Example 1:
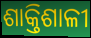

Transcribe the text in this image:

ଶାକ୍ତିଶାଳୀ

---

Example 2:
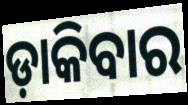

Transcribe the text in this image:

ଡ଼ାକିବାର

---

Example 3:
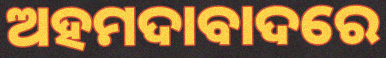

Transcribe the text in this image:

ଅହମଦାବାଦରେ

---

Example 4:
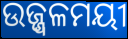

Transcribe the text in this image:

ଉଜ୍ଜ୍ୱଳମୟୀ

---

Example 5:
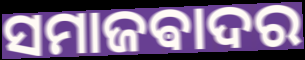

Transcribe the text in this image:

ସମାଜଵାଦର